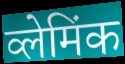
व्लेमिंक